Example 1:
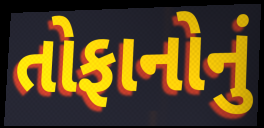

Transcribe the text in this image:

તોફાનોનું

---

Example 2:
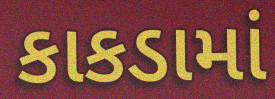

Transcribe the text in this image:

કાકડામાં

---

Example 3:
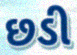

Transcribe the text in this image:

છડી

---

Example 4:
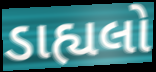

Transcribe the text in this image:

ડાહ્યલો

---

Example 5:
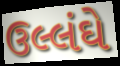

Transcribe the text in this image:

ઉલ્લંઘે